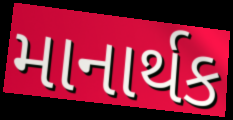
માનાર્થક